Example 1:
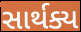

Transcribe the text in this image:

સાર્થક્ય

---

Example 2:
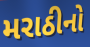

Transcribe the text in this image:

મરાઠીનો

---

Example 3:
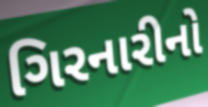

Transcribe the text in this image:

ગિરનારીનો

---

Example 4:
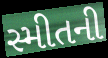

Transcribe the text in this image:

સ્મીતની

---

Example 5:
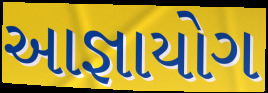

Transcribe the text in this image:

આજ્ઞાયોગ